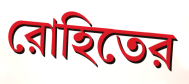
রোহিতের